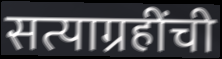
सत्याग्रहींची